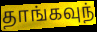
தாங்கவுந்